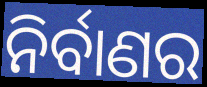
ନିର୍ବାଣର